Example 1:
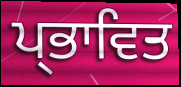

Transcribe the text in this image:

ਪ੍ਭਾਵਿਤ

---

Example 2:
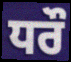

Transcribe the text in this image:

ਧਰੌ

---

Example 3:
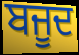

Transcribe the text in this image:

ਬਜੂਦ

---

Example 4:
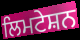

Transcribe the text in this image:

ਲਿਮਟੇਸ਼ਨ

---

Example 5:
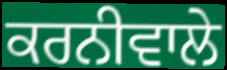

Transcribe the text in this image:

ਕਰਨੀਵਾਲੇ